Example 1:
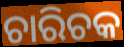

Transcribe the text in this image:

ଚାରିଚକ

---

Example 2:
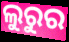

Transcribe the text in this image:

ଲୁରୁର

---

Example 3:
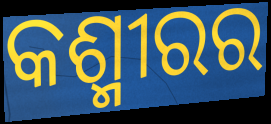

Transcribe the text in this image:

କଶ୍ମୀରର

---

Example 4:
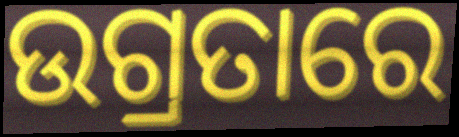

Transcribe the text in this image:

ଉଗ୍ରତାରେ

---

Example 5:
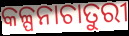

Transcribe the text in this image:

କଳ୍ପନାଚାତୁରୀ